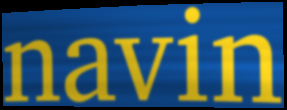
navin